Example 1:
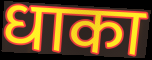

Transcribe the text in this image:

धाका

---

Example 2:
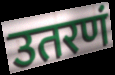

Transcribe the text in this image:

उतरणं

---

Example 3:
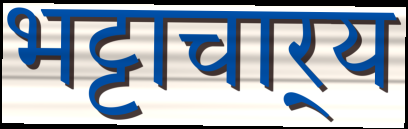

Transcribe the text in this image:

भट्टाचार्य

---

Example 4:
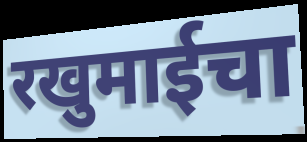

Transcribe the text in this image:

रखुमाईचा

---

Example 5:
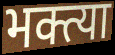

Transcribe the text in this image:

भक्त्या